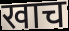
खाच